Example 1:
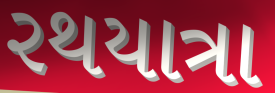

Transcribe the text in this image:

રથયાત્રા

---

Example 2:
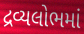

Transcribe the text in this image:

દ્રવ્યલોભમાં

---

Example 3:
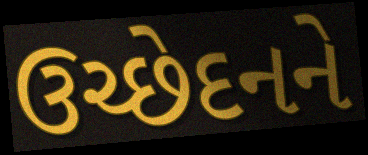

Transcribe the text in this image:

ઉચ્છેદનને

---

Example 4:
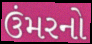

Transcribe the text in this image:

ઉંમરનો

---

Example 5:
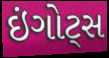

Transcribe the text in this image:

ઇંગોટ્સ